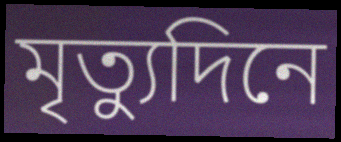
মৃত্যুদিনে